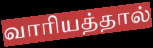
வாரியத்தால்